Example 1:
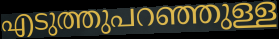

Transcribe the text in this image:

എടുത്തുപറഞ്ഞുള്ള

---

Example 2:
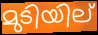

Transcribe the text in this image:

മുടിയില്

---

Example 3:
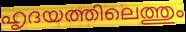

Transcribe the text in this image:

ഹൃദയത്തിലെത്തും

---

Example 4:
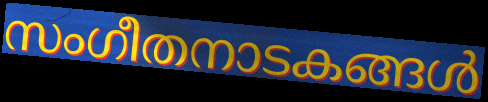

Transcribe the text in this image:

സംഗീതനാടകങ്ങൾ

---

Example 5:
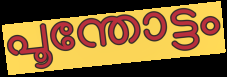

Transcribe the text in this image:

പൂന്തോട്ടം